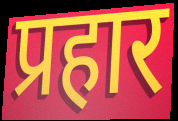
प्रहार